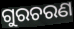
ଗୁରଚରଣ